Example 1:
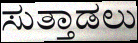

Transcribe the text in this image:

ಸುತ್ತಾಡಲು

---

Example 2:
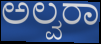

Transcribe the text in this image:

ಅಲ್ವರಾ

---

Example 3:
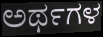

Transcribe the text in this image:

ಅರ್ಥಗಳ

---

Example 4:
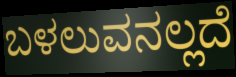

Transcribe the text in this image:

ಬಳಲುವನಲ್ಲದೆ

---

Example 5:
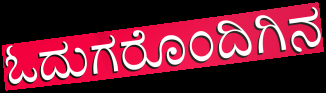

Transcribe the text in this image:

ಓದುಗರೊಂದಿಗಿನ